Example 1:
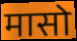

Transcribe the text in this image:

मासो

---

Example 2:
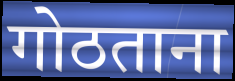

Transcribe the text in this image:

गोठताना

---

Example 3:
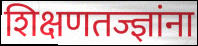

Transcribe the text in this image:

शिक्षणतज्ज्ञांना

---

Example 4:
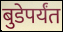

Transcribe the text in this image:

बुडेपर्यंत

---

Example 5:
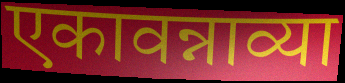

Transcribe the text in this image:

एकावन्नाव्या